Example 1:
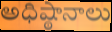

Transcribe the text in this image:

అధిష్ఠానాలు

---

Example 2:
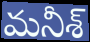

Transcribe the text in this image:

మనీశ్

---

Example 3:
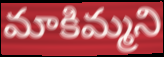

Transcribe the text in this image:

మాకిమ్మని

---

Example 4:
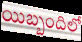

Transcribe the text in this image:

యిబ్బందిలో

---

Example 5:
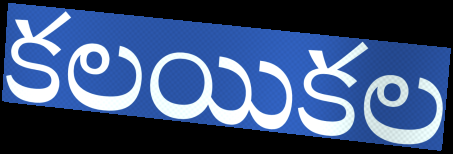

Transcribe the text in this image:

కలయికల